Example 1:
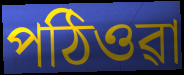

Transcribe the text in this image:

পঠিওৱা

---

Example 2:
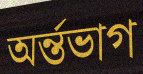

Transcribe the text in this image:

অৰ্ন্তভাগ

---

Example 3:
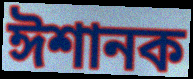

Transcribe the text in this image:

ঈশানক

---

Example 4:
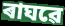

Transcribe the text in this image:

ৰাঘৱে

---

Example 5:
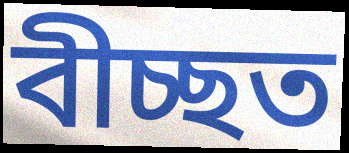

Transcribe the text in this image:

বীচ্ছত